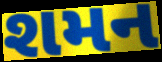
શમન